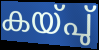
കയ്പു്